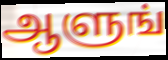
ஆளுங்